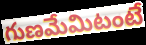
గుణమేమిటంటే